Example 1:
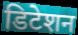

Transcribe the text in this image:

डिटेशन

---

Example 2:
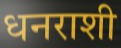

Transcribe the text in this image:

धनराशी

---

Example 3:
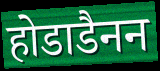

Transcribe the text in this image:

होडाडैनन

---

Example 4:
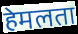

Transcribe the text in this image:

हेमलता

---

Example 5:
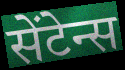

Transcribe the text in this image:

सेंटेन्स